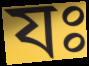
যঃ